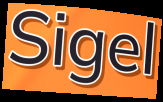
Sigel